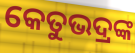
କେତୁଭଦ୍ରଙ୍କ